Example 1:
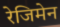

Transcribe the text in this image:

रेजिमेन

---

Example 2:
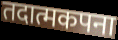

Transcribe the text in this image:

तदात्मकपना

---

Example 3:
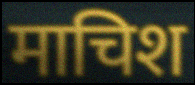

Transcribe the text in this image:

माचिश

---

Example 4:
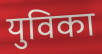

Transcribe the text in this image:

युविका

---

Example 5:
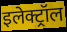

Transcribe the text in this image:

इलेक्ट्रॉल